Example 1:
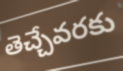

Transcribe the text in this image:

తెచ్చేవరకు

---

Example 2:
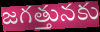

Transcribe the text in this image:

జగత్తునకు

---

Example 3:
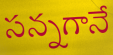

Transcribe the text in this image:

సన్నగానే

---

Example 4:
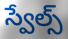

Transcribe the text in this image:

స్వేల్స్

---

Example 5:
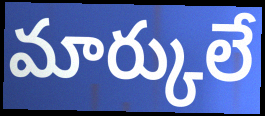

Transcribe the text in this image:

మార్కులే